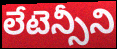
లేటెన్సీని